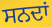
ਸਨਦਾਂ